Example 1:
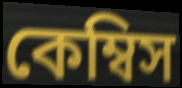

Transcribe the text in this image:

কেম্বিস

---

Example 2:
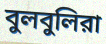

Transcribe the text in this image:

বুলবুলিরা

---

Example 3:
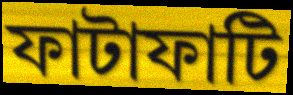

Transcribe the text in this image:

ফাটাফাটি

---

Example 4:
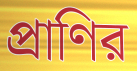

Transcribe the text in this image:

প্রাণির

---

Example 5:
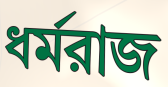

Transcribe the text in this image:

ধর্মরাজ